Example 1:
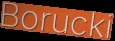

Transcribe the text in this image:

Borucki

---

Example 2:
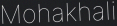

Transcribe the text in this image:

Mohakhali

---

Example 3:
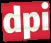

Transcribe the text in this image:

dpi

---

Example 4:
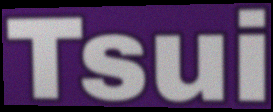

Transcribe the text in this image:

Tsui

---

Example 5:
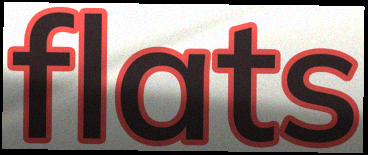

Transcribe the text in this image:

flats